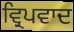
ਵ੍ਰਿਪਵਾਦ